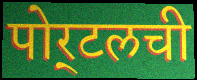
पोर्टलची